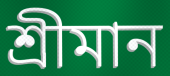
শ্ৰীমান